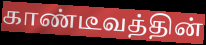
காண்டீவத்தின்